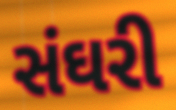
સંઘરી